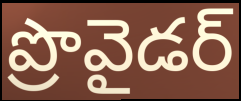
ప్రొవైడర్